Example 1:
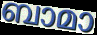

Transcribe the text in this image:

ബാമാ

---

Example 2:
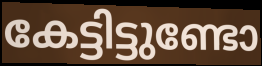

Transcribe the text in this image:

കേട്ടിട്ടുണ്ടോ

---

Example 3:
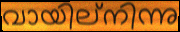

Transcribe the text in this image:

വായില്നിന്നു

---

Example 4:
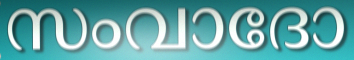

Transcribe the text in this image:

സംവാദോ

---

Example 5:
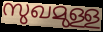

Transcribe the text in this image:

സുഖമുള്ള